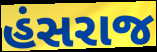
હંસરાજ